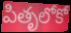
పితృలోకో